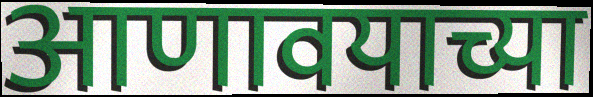
आणावयाच्या